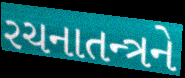
રચનાતન્ત્રને